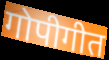
गोपीगीत